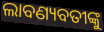
ଲାବଣ୍ୟବତୀଙ୍କୁ